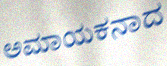
ಅಮಾಯಕನಾದ